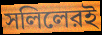
সলিলেরই